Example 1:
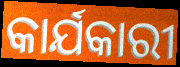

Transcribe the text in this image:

କାର୍ଯକାରୀ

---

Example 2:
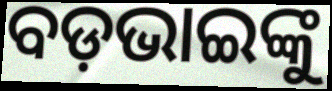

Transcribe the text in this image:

ବଡ଼ଭାଇଙ୍କୁ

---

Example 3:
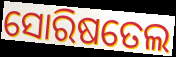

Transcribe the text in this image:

ସୋରିଷତେଲ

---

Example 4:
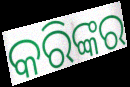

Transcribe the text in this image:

କରିଙ୍କର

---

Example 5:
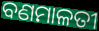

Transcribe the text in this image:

ବଣମାଳତୀ